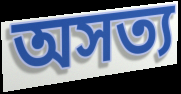
অসত্য